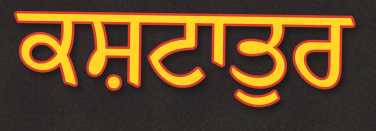
ਕਸ਼ਟਾਤੁਰ